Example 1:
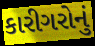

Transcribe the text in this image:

કારીગરોનું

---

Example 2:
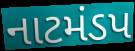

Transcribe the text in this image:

નાટમંડપ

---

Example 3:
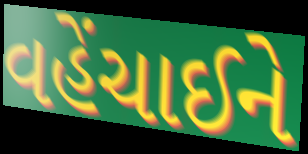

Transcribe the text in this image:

વહેંચાઈને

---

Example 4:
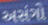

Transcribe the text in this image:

અસંગો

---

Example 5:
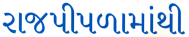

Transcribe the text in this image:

રાજપીપળામાંથી